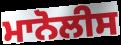
ਮਾਨੋਲੀਸ